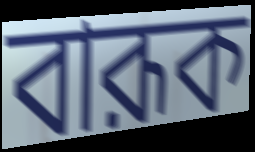
বারূক